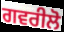
ਗਵਰੀਲੋ